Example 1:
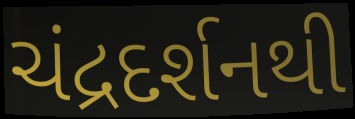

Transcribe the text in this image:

ચંદ્રદર્શનથી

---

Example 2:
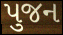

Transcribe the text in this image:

પુજન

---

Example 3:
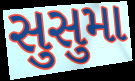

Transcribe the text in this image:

સુસુમા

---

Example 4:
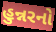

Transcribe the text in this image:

હુન્નરનો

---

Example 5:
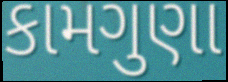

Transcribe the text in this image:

કામગુણા